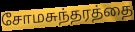
சோமசுந்தரத்தை